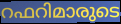
റഫറിമാരുടെ